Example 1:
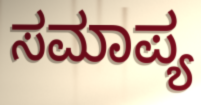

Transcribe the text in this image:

ಸಮಾಪ್ಯ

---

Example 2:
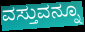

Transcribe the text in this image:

ವಸ್ತುವನ್ನೂ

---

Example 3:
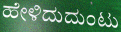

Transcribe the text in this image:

ಹೇಳಿದುದುಂಟು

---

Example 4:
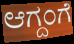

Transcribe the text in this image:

ಆಗ್ದಂಗೆ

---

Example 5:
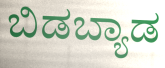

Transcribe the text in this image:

ಬಿಡಬ್ಯಾಡ